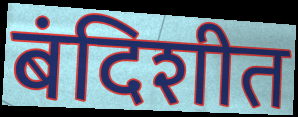
बंदिशीत